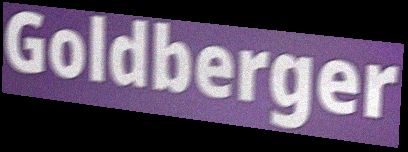
Goldberger